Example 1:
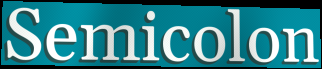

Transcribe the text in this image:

Semicolon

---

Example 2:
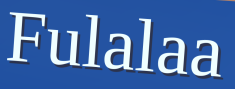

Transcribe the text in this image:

Fulalaa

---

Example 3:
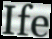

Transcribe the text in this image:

Ife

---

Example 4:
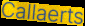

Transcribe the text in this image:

Callaerts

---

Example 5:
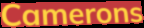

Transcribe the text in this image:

Camerons